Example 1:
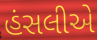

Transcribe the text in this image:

હંસલીએ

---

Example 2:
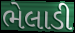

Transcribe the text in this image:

ભેલાડી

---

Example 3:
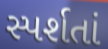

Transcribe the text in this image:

સ્પર્શતાં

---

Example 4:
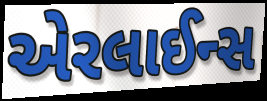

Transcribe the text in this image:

એરલાઈન્સ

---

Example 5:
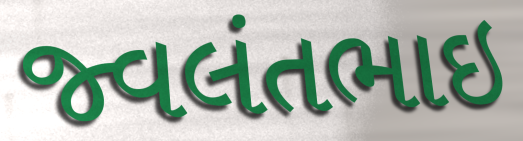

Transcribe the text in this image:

જ્વલંતભાઇ